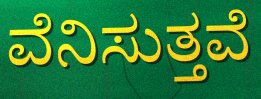
ವೆನಿಸುತ್ತವೆ